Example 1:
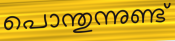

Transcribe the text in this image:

പൊന്തുന്നുണ്ട്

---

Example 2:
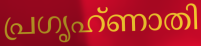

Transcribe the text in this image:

പ്രഗൃഹ്ണാതി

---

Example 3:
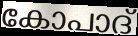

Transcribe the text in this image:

കോപാദ്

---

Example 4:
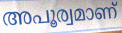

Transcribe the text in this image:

അപൂര്വമാണ്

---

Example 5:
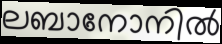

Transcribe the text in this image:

ലബാനോനിൽ